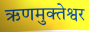
ऋणमुक्तेश्वर